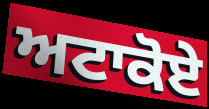
ਅਟਾਕੋਏ